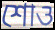
শোও